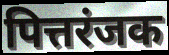
पित्तरंजक